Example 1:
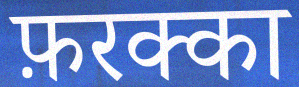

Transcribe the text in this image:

फ़रक्का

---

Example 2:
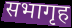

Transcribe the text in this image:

सभागृह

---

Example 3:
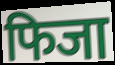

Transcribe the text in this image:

फिजा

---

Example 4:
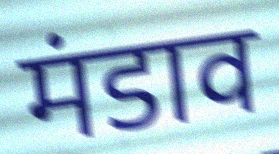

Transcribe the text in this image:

मंडाव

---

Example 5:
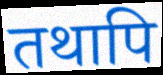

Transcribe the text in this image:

तथापि